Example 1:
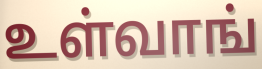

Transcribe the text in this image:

உள்வாங்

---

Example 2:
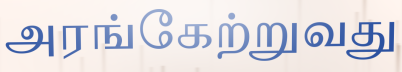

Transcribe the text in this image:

அரங்கேற்றுவது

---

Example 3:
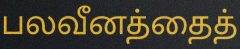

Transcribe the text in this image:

பலவீனத்தைத்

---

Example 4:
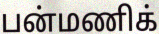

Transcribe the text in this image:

பன்மணிக்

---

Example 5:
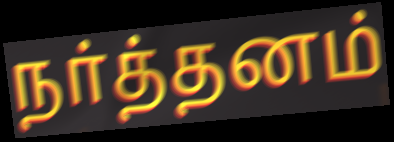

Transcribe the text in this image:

நர்த்தனம்